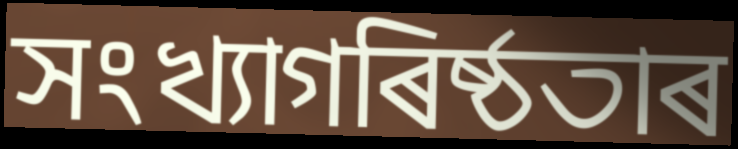
সংখ্যাগৰিষ্ঠতাৰ